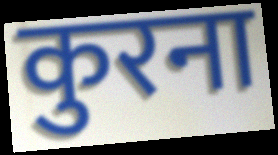
कुरना